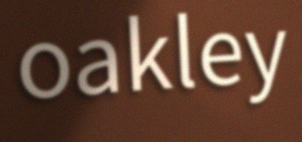
oakley